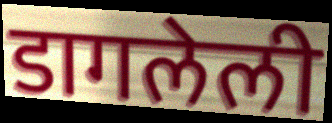
डागलेली